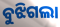
ବୁଝିଗଲା